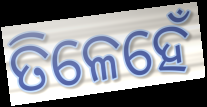
ତିଳେହେଁ